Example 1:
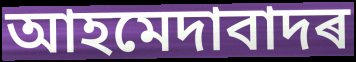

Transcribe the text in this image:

আহমেদাবাদৰ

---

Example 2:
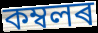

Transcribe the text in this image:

কম্বলৰ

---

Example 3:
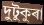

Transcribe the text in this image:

দুটুকুৰা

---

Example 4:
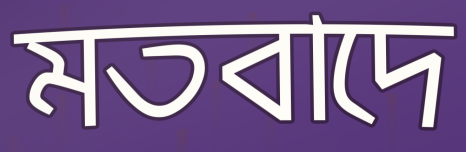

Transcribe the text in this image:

মতবাদে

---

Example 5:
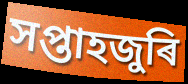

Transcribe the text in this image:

সপ্তাহজুৰি